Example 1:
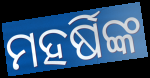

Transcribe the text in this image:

ମହର୍ଷିଙ୍କ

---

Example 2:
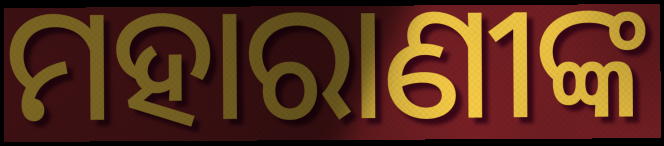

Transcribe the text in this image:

ମହାରାଣୀଙ୍କ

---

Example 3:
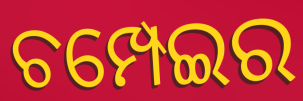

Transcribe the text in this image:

ଚମ୍ପେଇର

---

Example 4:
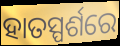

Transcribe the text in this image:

ହାତସ୍ପର୍ଶରେ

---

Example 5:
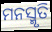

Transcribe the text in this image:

ମନସ୍ମୃତି